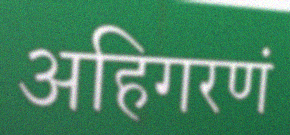
अहिगरणं